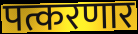
पत्करणार